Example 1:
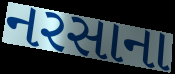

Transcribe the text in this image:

નરસાના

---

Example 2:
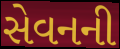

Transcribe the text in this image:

સેવનની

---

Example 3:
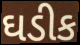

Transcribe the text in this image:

ઘડીક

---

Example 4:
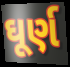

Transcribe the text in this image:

ઘૂર્ણ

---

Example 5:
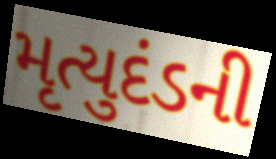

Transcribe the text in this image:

મૃત્યુદંડની